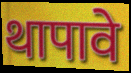
थापावे